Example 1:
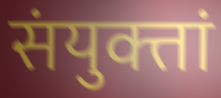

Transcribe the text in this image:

संयुक्तां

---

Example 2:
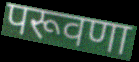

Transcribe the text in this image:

परूवणा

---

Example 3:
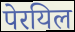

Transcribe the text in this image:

पेरयिल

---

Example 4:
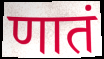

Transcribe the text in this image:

णातं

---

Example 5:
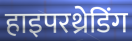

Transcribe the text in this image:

हाइपरथ्रेडिंग